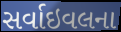
સર્વાઇવલના